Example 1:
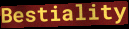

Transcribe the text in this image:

Bestiality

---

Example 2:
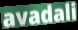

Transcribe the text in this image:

avadali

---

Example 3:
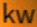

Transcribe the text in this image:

kw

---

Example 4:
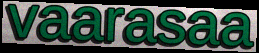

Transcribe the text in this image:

vaarasaa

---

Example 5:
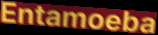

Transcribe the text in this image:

Entamoeba